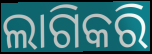
ଲାଗିକରି